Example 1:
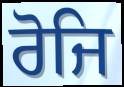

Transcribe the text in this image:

ਰੋਜਿ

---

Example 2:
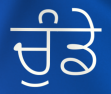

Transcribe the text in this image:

ਚੁੰਡੇ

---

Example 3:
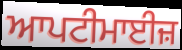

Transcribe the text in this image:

ਆਪਟੀਮਾਈਜ਼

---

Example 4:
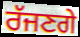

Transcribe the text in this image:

ਰੱਜਣਗੇ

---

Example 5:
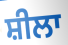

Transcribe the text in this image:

ਸ਼ੀਲਾ